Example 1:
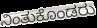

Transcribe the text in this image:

ನಿಂತುಕೊಂಡರು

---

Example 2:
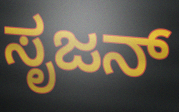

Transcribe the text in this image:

ಸೃಜನ್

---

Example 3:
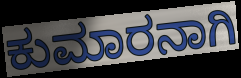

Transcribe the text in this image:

ಕುಮಾರನಾಗಿ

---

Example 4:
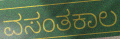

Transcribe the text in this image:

ವಸಂತಕಾಲ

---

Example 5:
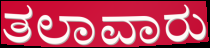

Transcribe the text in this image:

ತಲಾವಾರು